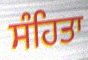
ਸੰਹਿਤਾ